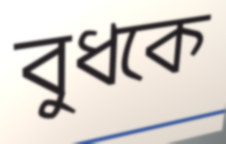
বুধকে